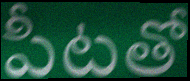
పీటతో